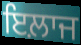
ਇਲ਼ਾਜ